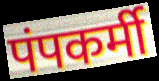
पंपकर्मी